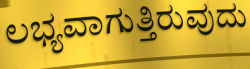
ಲಭ್ಯವಾಗುತ್ತಿರುವುದು